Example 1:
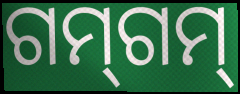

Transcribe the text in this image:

ଗମ୍‌ଗମ୍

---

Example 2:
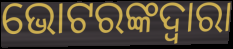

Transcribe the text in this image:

ଭୋଟରଙ୍କଦ୍ଵାରା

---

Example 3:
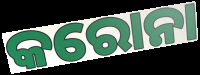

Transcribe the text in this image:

କରୋନା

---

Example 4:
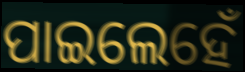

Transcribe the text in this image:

ପାଇଲେହେଁ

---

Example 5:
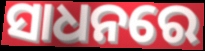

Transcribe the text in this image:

ସାଧନରେ